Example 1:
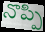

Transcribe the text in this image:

నొప్పి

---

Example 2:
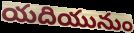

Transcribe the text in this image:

యదియునుం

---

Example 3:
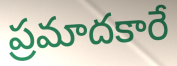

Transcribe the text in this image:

ప్రమాదకారే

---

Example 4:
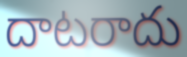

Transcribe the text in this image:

దాటరాదు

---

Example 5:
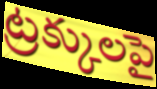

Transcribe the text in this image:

ట్రక్కులపై